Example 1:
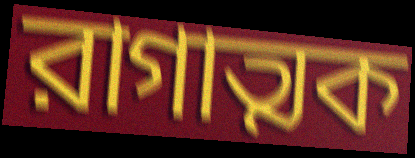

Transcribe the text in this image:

রাগাত্মক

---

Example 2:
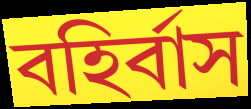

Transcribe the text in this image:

বহির্বাস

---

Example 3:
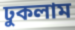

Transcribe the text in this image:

ঢুকলাম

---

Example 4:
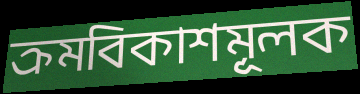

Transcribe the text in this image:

ক্রমবিকাশমূলক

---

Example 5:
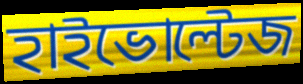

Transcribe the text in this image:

হাইভোল্টেজ